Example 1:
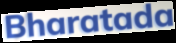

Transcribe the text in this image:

Bharatada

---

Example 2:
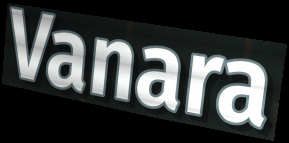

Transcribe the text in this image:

Vanara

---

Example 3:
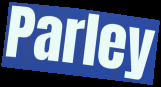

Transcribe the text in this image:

Parley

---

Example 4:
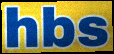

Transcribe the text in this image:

hbs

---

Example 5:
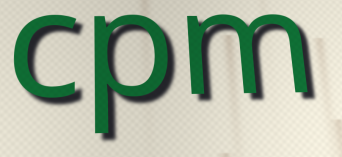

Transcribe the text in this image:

cpm